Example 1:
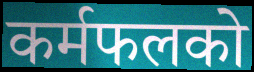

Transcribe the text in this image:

कर्मफलको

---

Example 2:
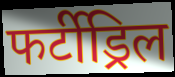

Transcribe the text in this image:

फर्टीड्रिल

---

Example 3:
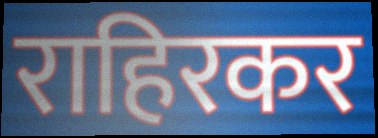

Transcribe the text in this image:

राहिरकर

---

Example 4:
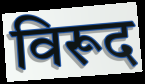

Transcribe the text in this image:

विरूद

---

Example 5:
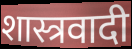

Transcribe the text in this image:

शास्त्रवादी